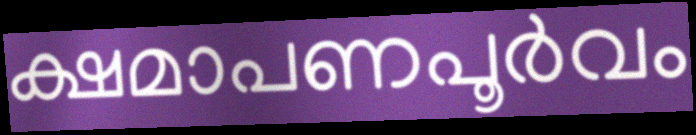
ക്ഷമാപണപൂർവം